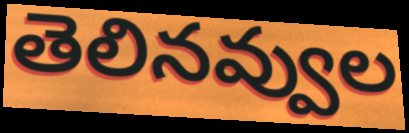
తెలినవ్వుల